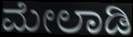
ಮೇಲಾಡಿ